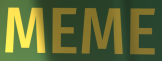
MEME